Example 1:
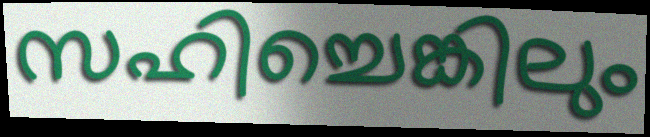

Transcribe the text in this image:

സഹിച്ചെങ്കിലും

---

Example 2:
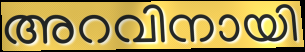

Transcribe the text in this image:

അറവിനായി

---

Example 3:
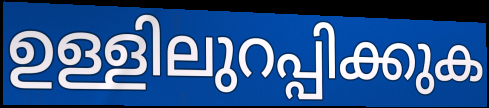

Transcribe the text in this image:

ഉള്ളിലുറപ്പിക്കുക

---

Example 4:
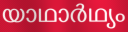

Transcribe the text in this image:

യാഥാർഥ്യം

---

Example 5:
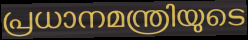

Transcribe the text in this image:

പ്രധാനമന്ത്രിയുടെ